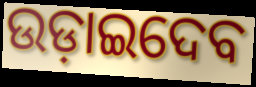
ଉଡ଼ାଇଦେବ